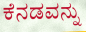
ಕೆನಡವನ್ನು